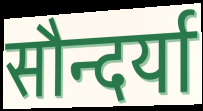
सौन्दर्या